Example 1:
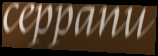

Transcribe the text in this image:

ceppanu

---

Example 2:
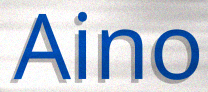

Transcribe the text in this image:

Aino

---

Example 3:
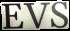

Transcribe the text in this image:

EVS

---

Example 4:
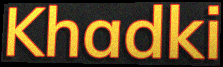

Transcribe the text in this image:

Khadki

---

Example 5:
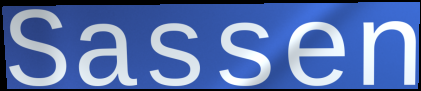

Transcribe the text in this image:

Sassen